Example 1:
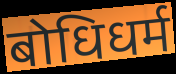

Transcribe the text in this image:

बोधिधर्म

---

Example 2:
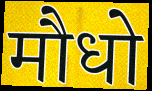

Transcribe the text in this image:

मौधो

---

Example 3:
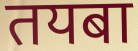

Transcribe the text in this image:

तयबा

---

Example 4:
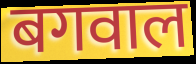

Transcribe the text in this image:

बगवाल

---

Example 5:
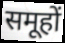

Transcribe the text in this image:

समूहों